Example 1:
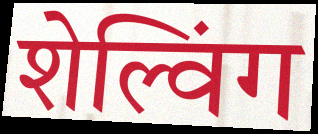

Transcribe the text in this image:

शेल्विंग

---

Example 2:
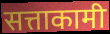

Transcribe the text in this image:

सत्ताकामी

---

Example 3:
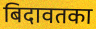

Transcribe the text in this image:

बिदावतका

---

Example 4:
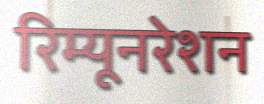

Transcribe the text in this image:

रिम्यूनरेशन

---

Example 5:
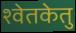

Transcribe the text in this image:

श्वेतकेतु